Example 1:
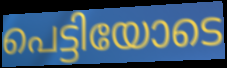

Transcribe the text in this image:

പെട്ടിയോടെ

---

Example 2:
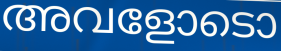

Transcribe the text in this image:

അവളോടൊ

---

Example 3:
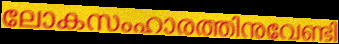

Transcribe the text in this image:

ലോകസംഹാരത്തിനുവേണ്ടി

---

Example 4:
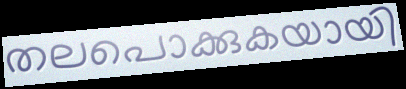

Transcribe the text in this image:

തലപൊക്കുകയായി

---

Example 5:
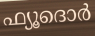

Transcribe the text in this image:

ഫ്യൂദൊർ